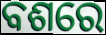
ବଶରେ